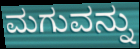
ಮಗುವನ್ನು